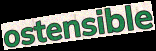
ostensible